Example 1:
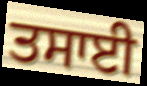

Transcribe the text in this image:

ਤਸਾਈ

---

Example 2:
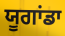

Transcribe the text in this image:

ਯੂਗਾਂਡਾ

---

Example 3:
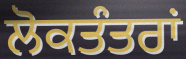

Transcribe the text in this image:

ਲੋਕਤੰਤਰਾਂ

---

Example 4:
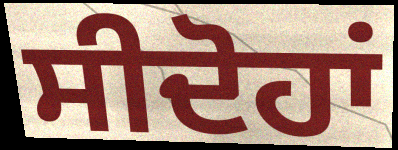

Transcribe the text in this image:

ਸੀਦੋਹਾਂ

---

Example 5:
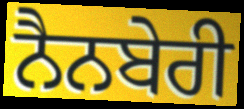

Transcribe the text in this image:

ਨੈਨਬੇਰੀ